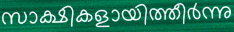
സാക്ഷികളായിത്തീർന്നു